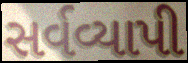
સર્વવ્યાપી